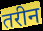
तरीन